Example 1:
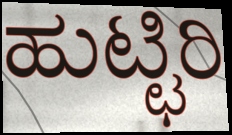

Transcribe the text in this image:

ಹುಟ್ಟಿರಿ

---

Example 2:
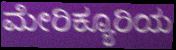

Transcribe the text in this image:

ಮೇರಿಕ್ಯೂರಿಯ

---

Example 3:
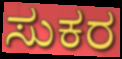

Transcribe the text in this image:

ಸುಕರ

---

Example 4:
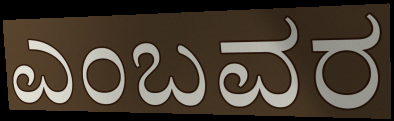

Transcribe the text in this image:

ಎಂಬವರ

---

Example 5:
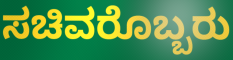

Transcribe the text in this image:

ಸಚಿವರೊಬ್ಬರು